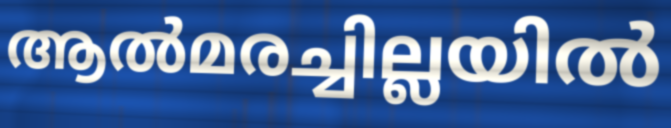
ആൽമരച്ചില്ലയിൽ